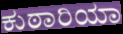
ಕುಠಾರಿಯಾ